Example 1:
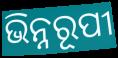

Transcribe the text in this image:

ଭିନ୍ନରୂପୀ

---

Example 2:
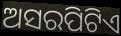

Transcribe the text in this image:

ଅସରପିଟିଏ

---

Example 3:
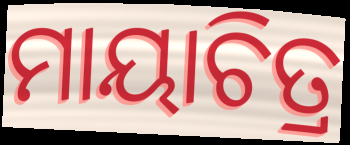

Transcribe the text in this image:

ମାୟାଚିତ୍ର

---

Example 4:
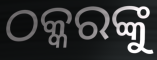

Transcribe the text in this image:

ଠକ୍କରଙ୍କୁ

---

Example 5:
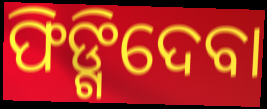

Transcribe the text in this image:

ଫିଙ୍ଗିଦେବା